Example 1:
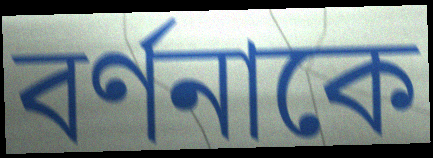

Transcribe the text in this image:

বর্ণনাকে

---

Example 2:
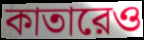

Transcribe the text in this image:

কাতারেও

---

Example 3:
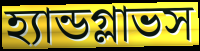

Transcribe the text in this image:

হ্যান্ডগ্লাভস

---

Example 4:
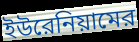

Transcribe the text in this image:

ইউরেনিয়ামের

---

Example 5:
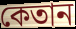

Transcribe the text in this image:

কেতান